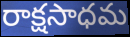
రాక్షసాధమ